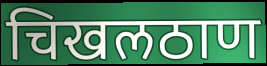
चिखलठाण